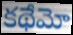
కథేమో